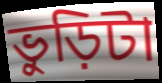
ভুড়িটা